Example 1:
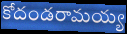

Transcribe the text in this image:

కోదండరామయ్య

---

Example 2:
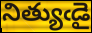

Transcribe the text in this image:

నిత్యుఁడై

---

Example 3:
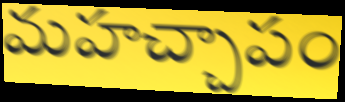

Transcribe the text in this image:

మహచ్చాపం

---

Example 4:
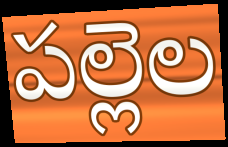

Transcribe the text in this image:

పల్లెల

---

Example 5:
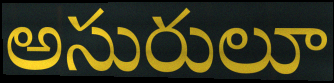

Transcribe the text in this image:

అసురులూ